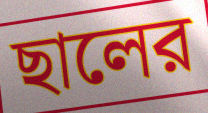
ছালের